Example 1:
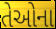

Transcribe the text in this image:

તેઓના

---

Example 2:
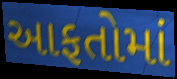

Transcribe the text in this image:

આફતોમાં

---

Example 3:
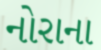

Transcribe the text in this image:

નોરાના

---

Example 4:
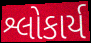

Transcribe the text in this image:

શ્લોકાર્ય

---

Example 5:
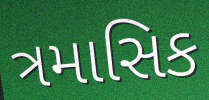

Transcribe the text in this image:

ત્રમાસિક